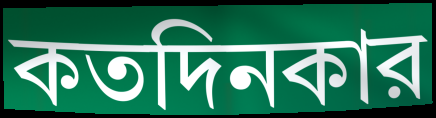
কতদিনকার